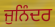
ਜੁਨਿੰਦਰ